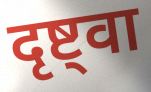
दृष्ट्वा